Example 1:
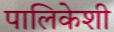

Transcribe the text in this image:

पालिकेशी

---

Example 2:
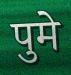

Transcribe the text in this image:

पुमे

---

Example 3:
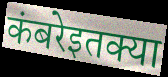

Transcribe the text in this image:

कंबरेइतक्या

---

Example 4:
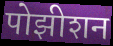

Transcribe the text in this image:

पोझीशन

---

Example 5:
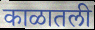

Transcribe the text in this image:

काळातली